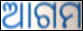
ଆଗମ